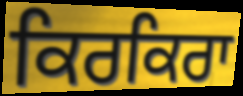
ਕਿਰਕਿਰਾ